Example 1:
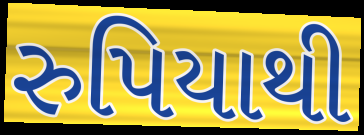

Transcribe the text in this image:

રુપિયાથી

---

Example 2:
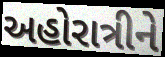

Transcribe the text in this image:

અહોરાત્રીને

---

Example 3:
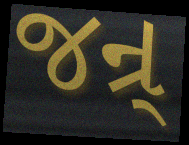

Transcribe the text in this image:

જન્ર્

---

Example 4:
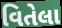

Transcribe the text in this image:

વિતેલા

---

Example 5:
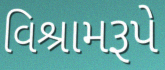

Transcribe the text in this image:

વિશ્રામરૂપે